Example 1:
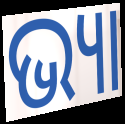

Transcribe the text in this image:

ଭ୍ୟା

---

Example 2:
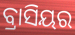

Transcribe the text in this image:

ବ୍ରାସିୟର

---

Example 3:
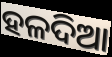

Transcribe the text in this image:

ହଳଦିଆ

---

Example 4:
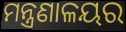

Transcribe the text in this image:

ମନ୍ତ୍ରଣାଳୟର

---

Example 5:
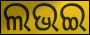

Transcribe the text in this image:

ଲଭଇ